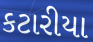
કટારીયા